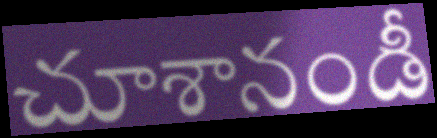
చూశానండీ